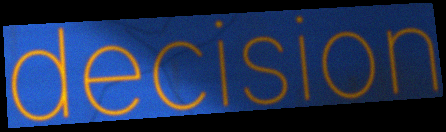
decision